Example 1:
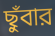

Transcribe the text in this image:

ছুঁবার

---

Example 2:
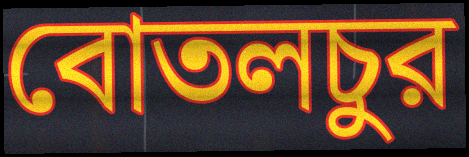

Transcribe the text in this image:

বোতলচুর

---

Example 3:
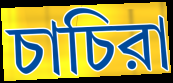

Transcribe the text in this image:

চাচিরা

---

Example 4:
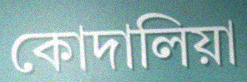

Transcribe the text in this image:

কোদালিয়া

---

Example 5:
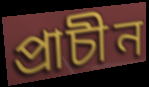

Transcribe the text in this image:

প্রাচীন